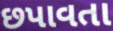
છપાવતા